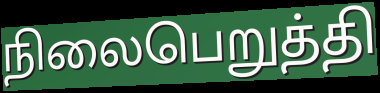
நிலைபெறுத்தி